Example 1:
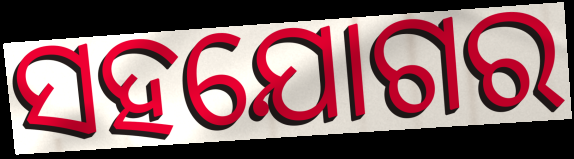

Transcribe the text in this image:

ସହଯୋଗର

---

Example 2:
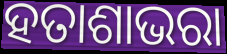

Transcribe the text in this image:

ହତାଶାଭରା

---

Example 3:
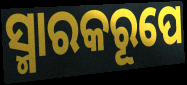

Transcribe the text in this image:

ସ୍ମାରକରୂପେ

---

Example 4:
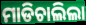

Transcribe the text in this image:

ମାଡିଚାଲିଲା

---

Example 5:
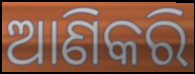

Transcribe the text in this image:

ଆଣିକରି